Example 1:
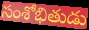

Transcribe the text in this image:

సంశోభితుడు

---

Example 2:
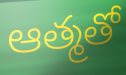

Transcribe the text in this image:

ఆత్మతో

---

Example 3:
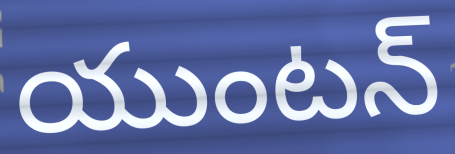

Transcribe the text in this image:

యుంటన్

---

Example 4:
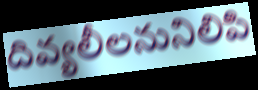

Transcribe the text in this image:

దివ్యలీలనునిలిపి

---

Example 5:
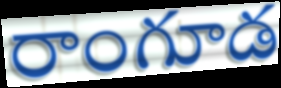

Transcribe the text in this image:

రాంగూడ